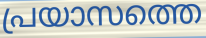
പ്രയാസത്തെ